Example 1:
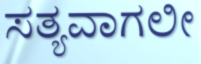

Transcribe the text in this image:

ಸತ್ಯವಾಗಲೀ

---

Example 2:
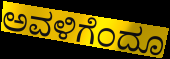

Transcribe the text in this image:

ಅವಳಿಗೆಂದೂ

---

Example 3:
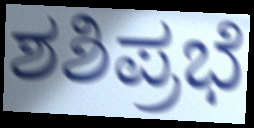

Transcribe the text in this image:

ಶಶಿಪ್ರಭೆ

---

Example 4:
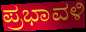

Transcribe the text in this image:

ಪ್ರಭಾವಳಿ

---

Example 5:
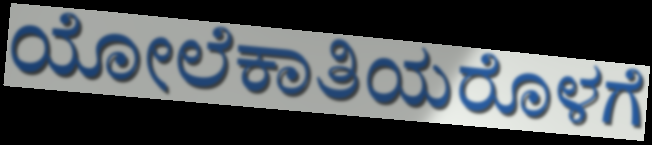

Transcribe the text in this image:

ಯೋಲೆಕಾತಿಯರೊಳಗೆ